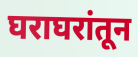
घराघरांतून